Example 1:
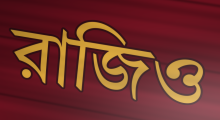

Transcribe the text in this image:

রাজিও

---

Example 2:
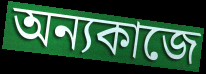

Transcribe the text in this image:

অন্যকাজে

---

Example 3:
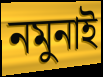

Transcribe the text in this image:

নমুনাই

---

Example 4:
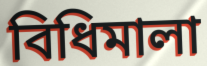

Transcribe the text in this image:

বিধিমালা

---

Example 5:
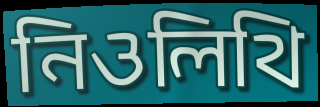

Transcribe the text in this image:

নিওলিথি